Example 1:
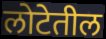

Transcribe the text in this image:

लोटेतील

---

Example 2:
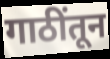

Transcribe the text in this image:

गाठींतून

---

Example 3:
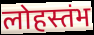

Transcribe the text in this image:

लोहस्तंभ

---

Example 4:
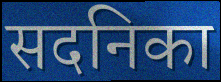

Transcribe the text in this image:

सदनिका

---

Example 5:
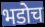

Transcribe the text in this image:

भडोच